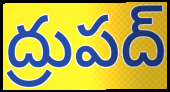
ద్రుపద్